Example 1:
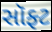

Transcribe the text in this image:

સૉફ્ટ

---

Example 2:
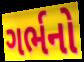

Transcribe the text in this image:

ગર્ભનો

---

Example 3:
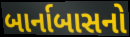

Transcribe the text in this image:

બાર્નાબાસનો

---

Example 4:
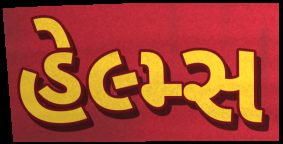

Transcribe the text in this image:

હેલ્મ્સ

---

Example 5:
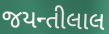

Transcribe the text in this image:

જયન્તીલાલ